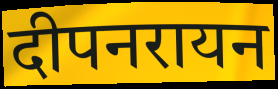
दीपनरायन